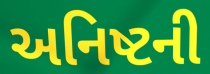
અનિષ્ટની